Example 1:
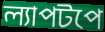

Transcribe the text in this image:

ল্যাপটপে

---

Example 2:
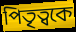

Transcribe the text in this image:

পিতৃত্বকে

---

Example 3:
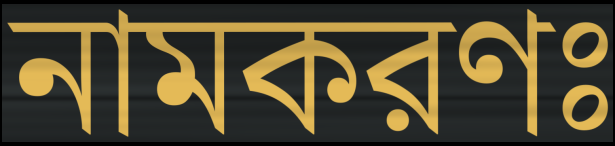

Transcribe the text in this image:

নামকরণঃ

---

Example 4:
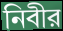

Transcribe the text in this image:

নিবীর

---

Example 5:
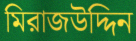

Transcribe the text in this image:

মিরাজউদ্দিন